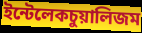
ইন্টেলেকচুয়ালিজম